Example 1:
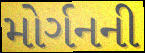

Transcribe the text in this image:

મોર્ગનની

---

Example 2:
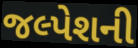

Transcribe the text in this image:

જલ્પેશની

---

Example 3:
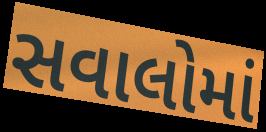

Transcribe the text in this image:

સવાલોમાં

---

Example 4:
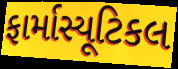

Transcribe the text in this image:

ફાર્માસ્યૂટિકલ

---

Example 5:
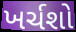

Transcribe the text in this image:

ખર્ચશો